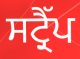
ਸਟ੍ਰੈੱਪ